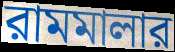
রামমালার